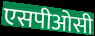
एसपीओसी